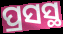
ପ୍ରସସ୍ଥ